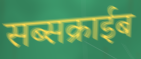
सब्सक्राईब